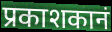
प्रकाशकानं